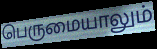
பெருமையாலும்